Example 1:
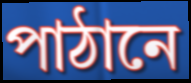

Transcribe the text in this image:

পাঠানে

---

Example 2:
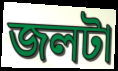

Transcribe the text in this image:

জলটা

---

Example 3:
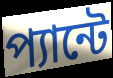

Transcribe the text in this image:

প্যান্টে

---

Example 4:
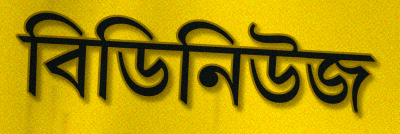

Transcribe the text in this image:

বিডিনিউজ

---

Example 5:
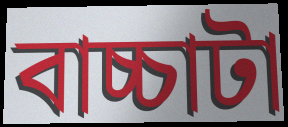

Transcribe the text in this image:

বাচ্চাটা